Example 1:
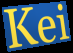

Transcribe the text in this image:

Kei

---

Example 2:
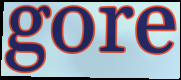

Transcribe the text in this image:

gore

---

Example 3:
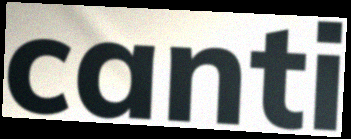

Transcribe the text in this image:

canti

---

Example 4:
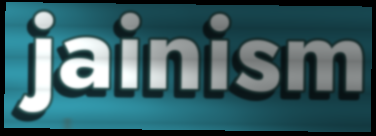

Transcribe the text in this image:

jainism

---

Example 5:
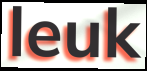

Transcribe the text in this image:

leuk